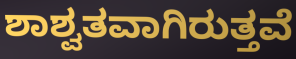
ಶಾಶ್ವತವಾಗಿರುತ್ತವೆ